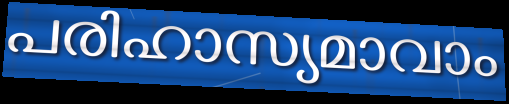
പരിഹാസ്യമാവാം